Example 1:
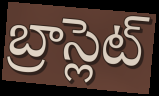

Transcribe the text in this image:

బ్రాస్లెట్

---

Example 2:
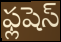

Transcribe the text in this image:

ఫ్లషెస్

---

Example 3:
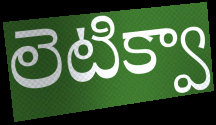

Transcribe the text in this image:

లెటిక్వా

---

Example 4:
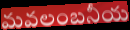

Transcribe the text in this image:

మవలంబనీయ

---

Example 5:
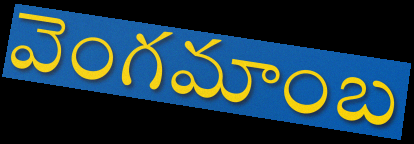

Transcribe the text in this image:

వెంగమాంబ